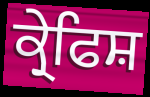
ਕ੍ਰੇਫਿਸ਼